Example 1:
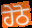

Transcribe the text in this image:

ਹੇਠੋ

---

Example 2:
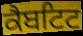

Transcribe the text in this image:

ਕੈਬਟਿਟ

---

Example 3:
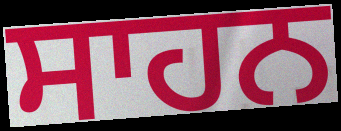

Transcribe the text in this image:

ਸਾਹਨ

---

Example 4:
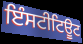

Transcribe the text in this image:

ਇੰਸਟੀਟਿਊਟ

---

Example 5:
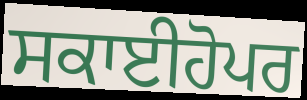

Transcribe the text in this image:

ਸਕਾਈਹੋਪਰ